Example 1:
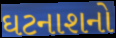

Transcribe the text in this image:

ઘટનાશનો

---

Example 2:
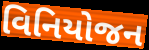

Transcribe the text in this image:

વિનિયોજન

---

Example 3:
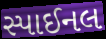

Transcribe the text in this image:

સ્પાઈનલ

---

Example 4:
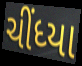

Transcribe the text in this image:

ચીંધ્યા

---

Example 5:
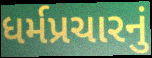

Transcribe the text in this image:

ધર્મપ્રચારનું